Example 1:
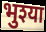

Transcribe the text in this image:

भुश्या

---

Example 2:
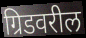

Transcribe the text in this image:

ग्रिडवरील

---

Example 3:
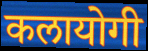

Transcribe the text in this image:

कलायोगी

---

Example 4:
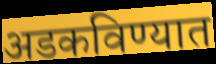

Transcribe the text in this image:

अडकविण्यात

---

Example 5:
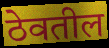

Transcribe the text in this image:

ठेवतील